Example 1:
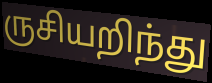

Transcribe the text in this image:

ருசியறிந்து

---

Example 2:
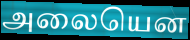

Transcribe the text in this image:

அலையென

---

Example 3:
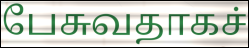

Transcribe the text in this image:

பேசுவதாகச்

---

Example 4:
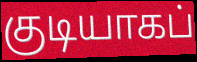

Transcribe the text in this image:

குடியாகப்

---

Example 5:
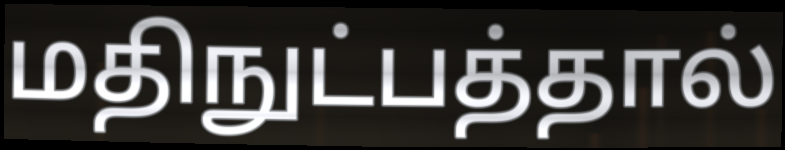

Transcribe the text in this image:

மதிநுட்பத்தால்